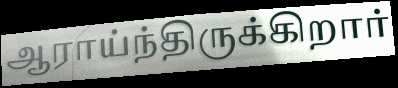
ஆராய்ந்திருக்கிறார்